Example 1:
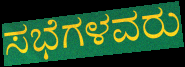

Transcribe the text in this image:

ಸಭೆಗಳವರು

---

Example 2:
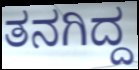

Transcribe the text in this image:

ತನಗಿದ್ದ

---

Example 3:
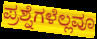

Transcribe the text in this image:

ಪ್ರಶ್ನೆಗಳೆಲ್ಲವೂ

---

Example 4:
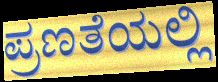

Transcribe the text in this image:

ಪ್ರಣತೆಯಲ್ಲಿ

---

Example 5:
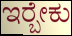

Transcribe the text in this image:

ಇರ‍್ಬೇಕು